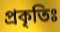
প্রকৃতিঃ